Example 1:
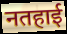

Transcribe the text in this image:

नतहाई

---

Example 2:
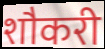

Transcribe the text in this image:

शौकरी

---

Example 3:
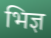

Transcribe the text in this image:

भिज्ञ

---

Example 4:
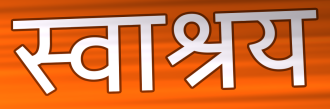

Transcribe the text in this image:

स्वाश्रय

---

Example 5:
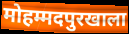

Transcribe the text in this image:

मोहम्मदपुरखाला